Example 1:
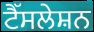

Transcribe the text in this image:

ਟੈੱਸਲੇਸ਼ਨ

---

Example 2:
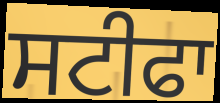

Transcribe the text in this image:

ਸਟੀਫਾ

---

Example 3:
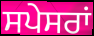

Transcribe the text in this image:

ਸਪੇਸਰਾਂ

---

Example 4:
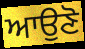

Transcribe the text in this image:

ਆਉਣੋ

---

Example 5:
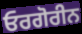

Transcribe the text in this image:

ਓਰਗੋਰੀਨ